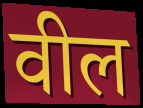
वील